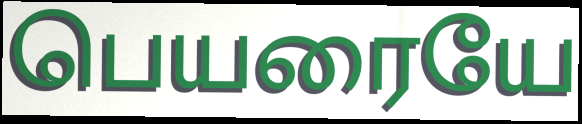
பெயரையே